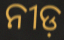
ନୀଡ଼